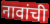
नावांची